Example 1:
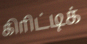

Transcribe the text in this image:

கிரிட்டிக்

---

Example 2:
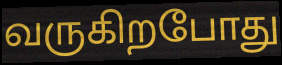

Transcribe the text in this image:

வருகிறபோது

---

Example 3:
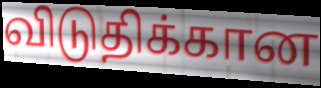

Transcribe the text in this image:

விடுதிக்கான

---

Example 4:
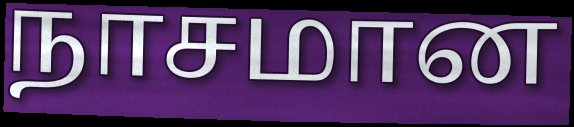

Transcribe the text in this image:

நாசமான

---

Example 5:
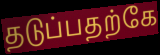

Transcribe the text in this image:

தடுப்பதற்கே